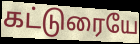
கட்டுரையே